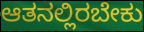
ಆತನಲ್ಲಿರಬೇಕು